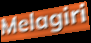
Melagiri